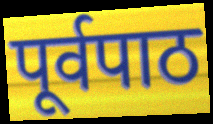
पूर्वपाठ